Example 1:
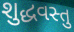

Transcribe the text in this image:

શુદ્ધવસ્તુ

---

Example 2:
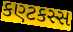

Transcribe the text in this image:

કણ્ટકસ્સ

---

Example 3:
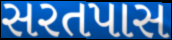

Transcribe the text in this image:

સરતપાસ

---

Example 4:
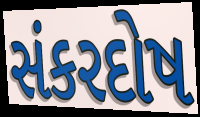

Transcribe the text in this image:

સંકરદોષ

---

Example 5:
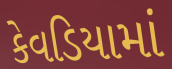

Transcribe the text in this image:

કેવડિયામાં